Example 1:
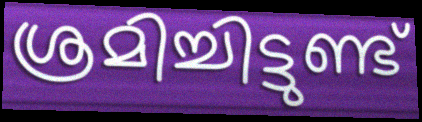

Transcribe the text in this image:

ശ്രമിച്ചിട്ടുണ്ട്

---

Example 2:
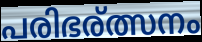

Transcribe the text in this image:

പരിഭര്ത്സനം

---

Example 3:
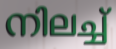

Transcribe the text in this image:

നിലച്ച്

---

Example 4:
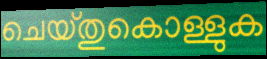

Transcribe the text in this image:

ചെയ്തുകൊള്ളുക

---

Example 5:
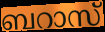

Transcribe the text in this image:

ബറാസ്